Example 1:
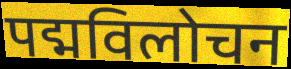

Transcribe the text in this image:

पद्मविलोचन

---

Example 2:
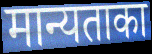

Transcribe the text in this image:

मान्यताका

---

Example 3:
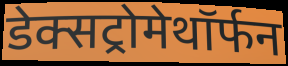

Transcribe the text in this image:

डेक्सट्रोमेथॉर्फन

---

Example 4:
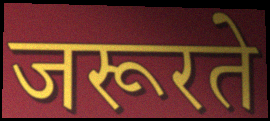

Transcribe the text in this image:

जरूरते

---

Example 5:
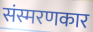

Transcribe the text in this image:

संस्मरणकार